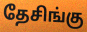
தேசிங்கு